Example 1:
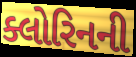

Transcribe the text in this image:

ક્લોરિનની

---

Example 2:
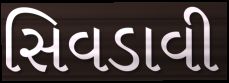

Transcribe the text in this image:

સિવડાવી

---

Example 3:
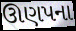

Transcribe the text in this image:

ઊણપના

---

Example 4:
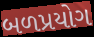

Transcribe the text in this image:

બળપ્રયોગ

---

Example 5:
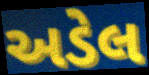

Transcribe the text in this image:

અડેલ